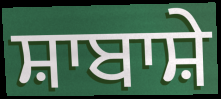
ਸ਼ਾਬਾਸ਼ੇ